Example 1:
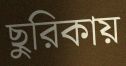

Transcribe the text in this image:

ছুরিকায়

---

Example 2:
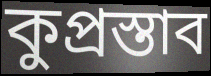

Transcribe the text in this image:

কুপ্রস্তাব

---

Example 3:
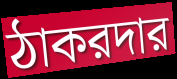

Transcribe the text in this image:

ঠাকরদার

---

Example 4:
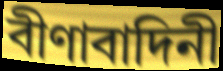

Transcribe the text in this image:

বীণাবাদিনী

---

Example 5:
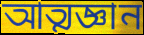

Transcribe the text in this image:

আত্মজ্ঞান